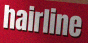
hairline